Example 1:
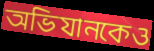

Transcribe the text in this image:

অভিযানকেও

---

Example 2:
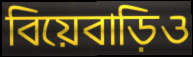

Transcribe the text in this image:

বিয়েবাড়িও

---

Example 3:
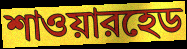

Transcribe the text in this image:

শাওয়ারহেড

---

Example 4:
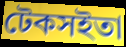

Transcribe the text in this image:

টেকসইতা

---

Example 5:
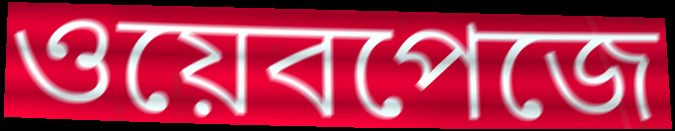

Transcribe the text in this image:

ওয়েবপেজে